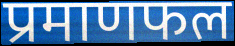
प्रमाणफल